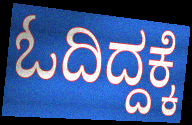
ಓದಿದ್ದಕ್ಕೆ